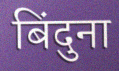
बिंदुना